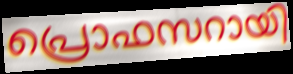
പ്രൊഫസറായി